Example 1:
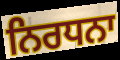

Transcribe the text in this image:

ਨਿਰਧਨਾ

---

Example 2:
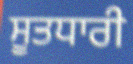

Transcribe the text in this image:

ਸੂਤਧਾਰੀ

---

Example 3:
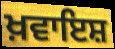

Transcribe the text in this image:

ਖ਼ਵਾਇਸ਼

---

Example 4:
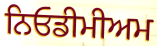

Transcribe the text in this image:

ਨਿਓਡੀਮੀਅਮ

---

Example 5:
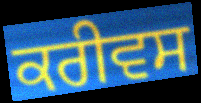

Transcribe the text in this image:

ਕਰੀਵਸ